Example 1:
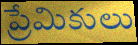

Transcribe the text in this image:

ప్రేమికులు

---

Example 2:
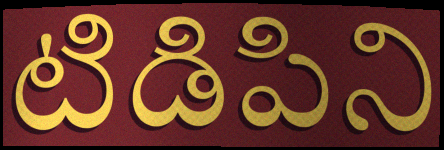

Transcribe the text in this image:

టిడిపిని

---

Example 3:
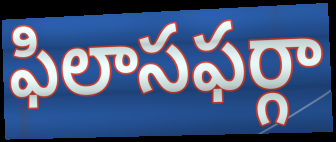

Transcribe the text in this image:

ఫిలాసఫర్గా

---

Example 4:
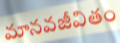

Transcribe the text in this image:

మానవజీవితం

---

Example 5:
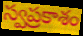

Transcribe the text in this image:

స్వప్రకాశం